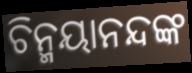
ଚିନ୍ମୟାନନ୍ଦଙ୍କ